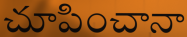
చూపించానా